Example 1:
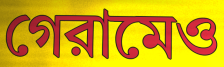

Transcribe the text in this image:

গেরামেও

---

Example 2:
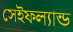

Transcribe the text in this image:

সেইফল্যান্ড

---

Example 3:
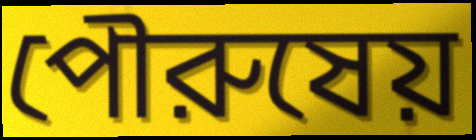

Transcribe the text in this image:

পৌরুষেয়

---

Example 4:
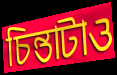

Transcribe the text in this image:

চিন্তাটাও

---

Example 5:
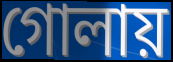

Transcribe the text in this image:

গোলায়